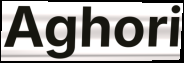
Aghori